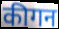
कीगन